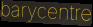
barycentre